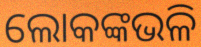
ଲୋକଙ୍କଭଳି